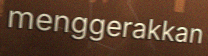
menggerakkan